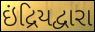
ઇંદ્રિયદ્વારા